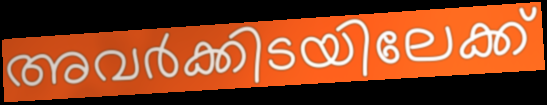
അവർക്കിടയിലേക്ക്